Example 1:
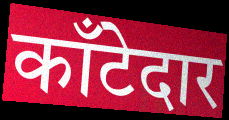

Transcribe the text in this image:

काँटेदार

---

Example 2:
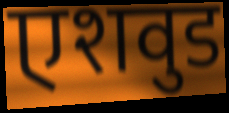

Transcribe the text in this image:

एशवुड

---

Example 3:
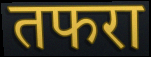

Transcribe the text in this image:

तफरा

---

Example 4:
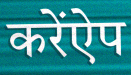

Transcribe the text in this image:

करेंऐप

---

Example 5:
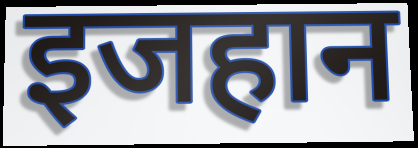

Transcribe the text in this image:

इजहान